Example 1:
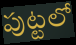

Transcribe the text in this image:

పుట్టలో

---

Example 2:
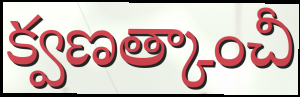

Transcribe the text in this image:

క్వణత్కాంచీ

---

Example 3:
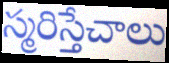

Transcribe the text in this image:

స్మరిస్తేచాలు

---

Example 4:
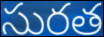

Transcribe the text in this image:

సురత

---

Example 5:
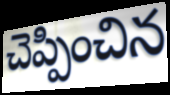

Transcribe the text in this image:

చెప్పించిన